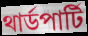
থার্ডপার্টি